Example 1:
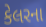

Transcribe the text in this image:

કેલરના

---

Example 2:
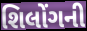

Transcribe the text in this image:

શિલોંગની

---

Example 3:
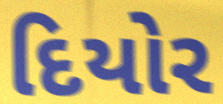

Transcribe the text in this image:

દિયોર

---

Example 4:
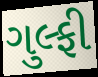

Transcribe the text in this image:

ગુલ્ફી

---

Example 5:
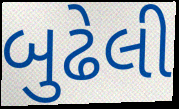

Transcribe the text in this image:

બુઢેલી